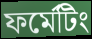
ফর্মেটিং